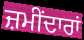
ਜ਼ਮੀਂਦਾਰਾਂ